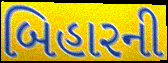
બિહારની